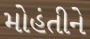
મોહંતીને